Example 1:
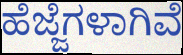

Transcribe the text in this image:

ಹೆಜ್ಜೆಗಳಾಗಿವೆ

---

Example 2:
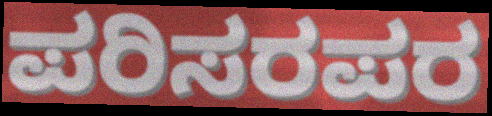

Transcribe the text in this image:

ಪರಿಸರಪರ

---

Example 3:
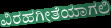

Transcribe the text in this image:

ವಿರಹಗೀತೆಯಾಗಲಿ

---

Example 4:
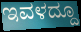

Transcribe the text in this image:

ಇವಳದ್ದೂ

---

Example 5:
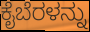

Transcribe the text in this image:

ಕೈಬೆರಳನ್ನು